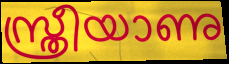
സ്ത്രീയാണു